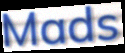
Mads